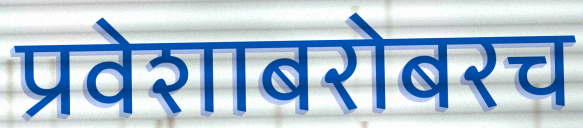
प्रवेशाबरोबरच